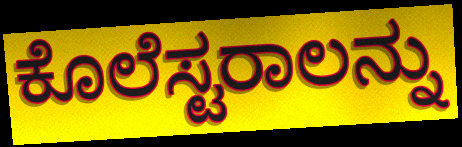
ಕೊಲೆಸ್ಟರಾಲನ್ನು